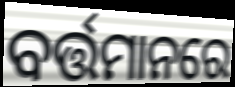
ବର୍ତ୍ତମାନରେ